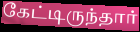
கேட்டிருந்தார்